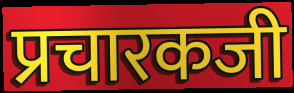
प्रचारकजी